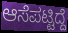
ಆಸೆಪಟ್ಟಿದ್ದೆ